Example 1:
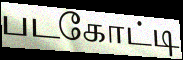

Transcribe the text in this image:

படகோட்டி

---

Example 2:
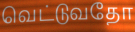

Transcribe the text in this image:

வெட்டுவதோ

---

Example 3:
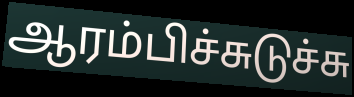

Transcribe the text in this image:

ஆரம்பிச்சுடுச்சு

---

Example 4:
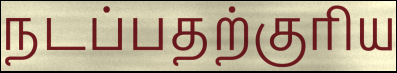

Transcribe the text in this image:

நடப்பதற்குரிய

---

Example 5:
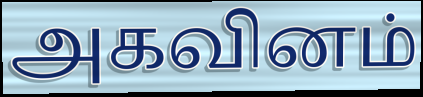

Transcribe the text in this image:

அகவினம்